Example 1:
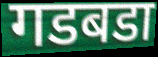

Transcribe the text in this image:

गडबडा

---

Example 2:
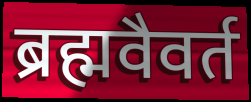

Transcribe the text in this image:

ब्रह्मवैवर्त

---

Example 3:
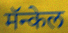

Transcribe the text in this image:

मॅन्केल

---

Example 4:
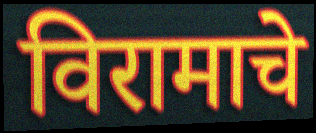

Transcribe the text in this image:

विरामाचे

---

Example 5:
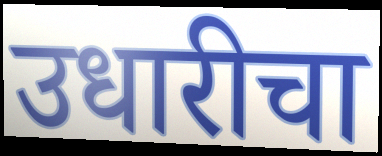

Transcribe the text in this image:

उधारीचा